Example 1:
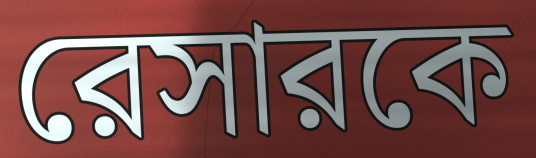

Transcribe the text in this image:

রেসারকে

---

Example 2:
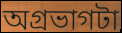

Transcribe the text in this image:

অগ্রভাগটা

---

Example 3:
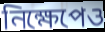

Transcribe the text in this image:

নিক্ষেপেও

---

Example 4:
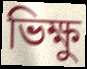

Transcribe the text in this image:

ভিক্ষু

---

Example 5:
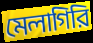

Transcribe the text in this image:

মেলাগিরি